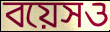
বয়েসও